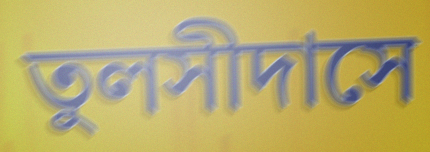
তুলসীদাসে